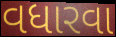
વધારવા